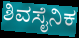
ಶಿವಸೈನಿಕ